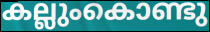
കല്ലുംകൊണ്ടു